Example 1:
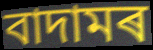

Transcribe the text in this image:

বাদামৰ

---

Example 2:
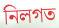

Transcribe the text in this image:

নিলগত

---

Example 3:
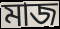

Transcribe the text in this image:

মাজ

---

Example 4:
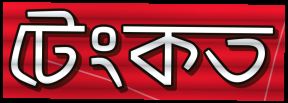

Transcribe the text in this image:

টেংকত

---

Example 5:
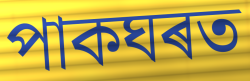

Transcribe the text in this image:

পাকঘৰত